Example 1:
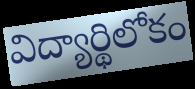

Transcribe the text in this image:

విద్యార్థిలోకం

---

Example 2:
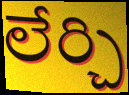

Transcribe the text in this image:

లేర్చి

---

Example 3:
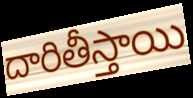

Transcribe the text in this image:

దారితీస్తాయి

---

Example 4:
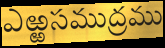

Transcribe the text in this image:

ఎఱ్ఱసముద్రము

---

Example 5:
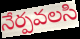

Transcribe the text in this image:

నేర్పవలసి